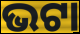
ଭଟା